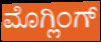
ಮೊಗ್ಲಿಂಗ್